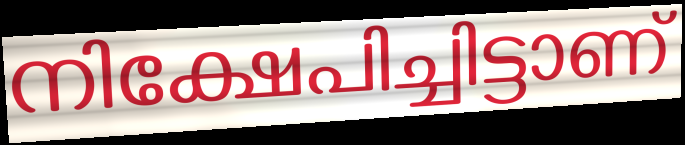
നിക്ഷേപിച്ചിട്ടാണ്